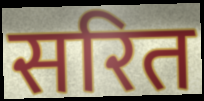
सरित